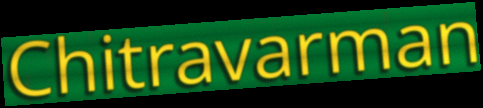
Chitravarman